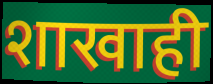
शाखाही